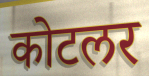
कोटलर